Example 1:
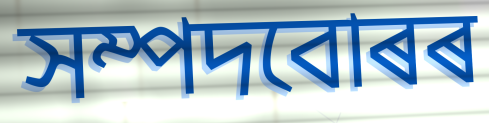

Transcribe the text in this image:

সম্পদবোৰৰ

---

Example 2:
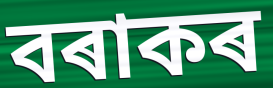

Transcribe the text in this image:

বৰাকৰ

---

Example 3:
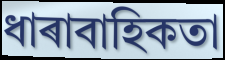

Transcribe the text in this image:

ধাৰাবাহিকতা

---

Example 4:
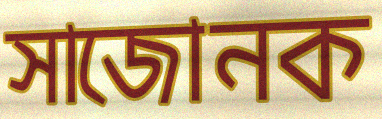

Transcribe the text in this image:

সাজোনক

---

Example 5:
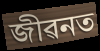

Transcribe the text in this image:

জীৱনত